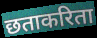
छताकरिता